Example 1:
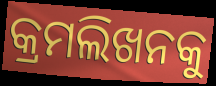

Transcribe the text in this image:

କ୍ରମଲିଖନକୁ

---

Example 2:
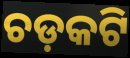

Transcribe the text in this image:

ଚଡ଼କଟି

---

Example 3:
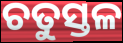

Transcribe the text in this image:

ଚତୁସ୍ତଳ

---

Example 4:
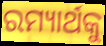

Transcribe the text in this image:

ରମ୍ୟାର୍ଥକୁ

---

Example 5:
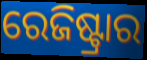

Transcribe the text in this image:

ରେଜିଷ୍ଟ୍ରାର